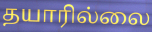
தயாரில்லை